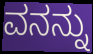
ವನನ್ನು